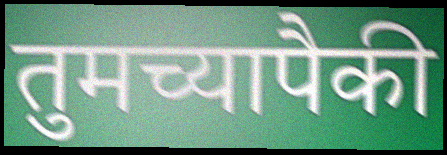
तुमच्यापैकी